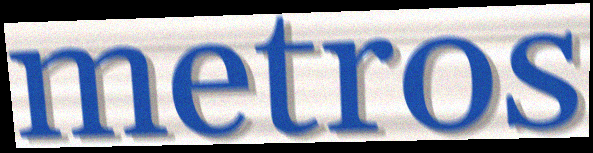
metros